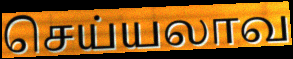
செய்யலாவ